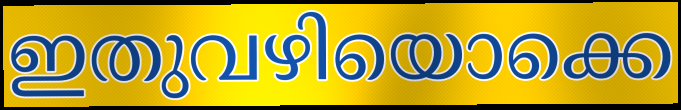
ഇതുവഴിയൊക്കെ